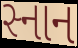
સ્નાન